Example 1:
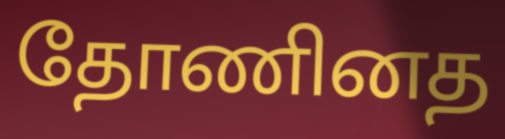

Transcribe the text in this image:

தோணினத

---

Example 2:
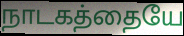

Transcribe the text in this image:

நாடகத்தையே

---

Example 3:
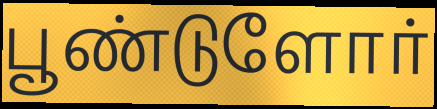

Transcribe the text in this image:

பூண்டுளோர்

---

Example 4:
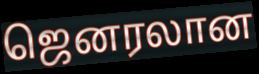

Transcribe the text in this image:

ஜெனரலான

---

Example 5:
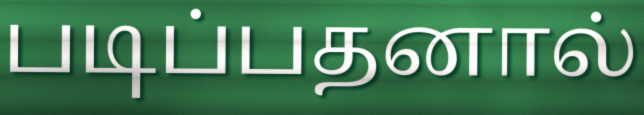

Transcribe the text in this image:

படிப்பதனால்